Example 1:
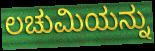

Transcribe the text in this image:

ಲಚುಮಿಯನ್ನು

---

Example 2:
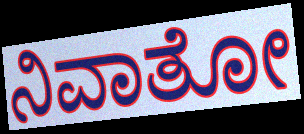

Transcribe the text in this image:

ನಿವಾತೋ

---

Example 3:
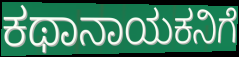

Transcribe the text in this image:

ಕಥಾನಾಯಕನಿಗೆ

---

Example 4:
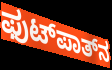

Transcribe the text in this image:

ಫುಟ್‌ಪಾತ್‌ನ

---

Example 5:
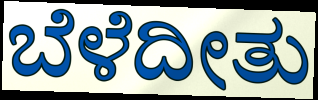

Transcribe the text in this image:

ಬೆಳೆದೀತು